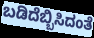
ಬಡಿದೆಬ್ಬಿಸಿದಂತೆ